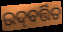
ଉଦ୍‌ବର୍ତ୍ତିତ